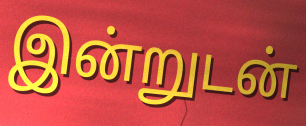
இன்றுடன்